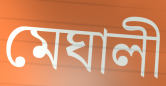
মেঘালী